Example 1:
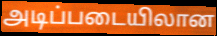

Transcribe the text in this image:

அடிப்படையிலான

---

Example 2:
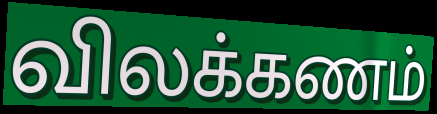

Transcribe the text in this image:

விலக்கணம்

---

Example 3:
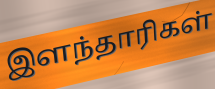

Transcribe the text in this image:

இளந்தாரிகள்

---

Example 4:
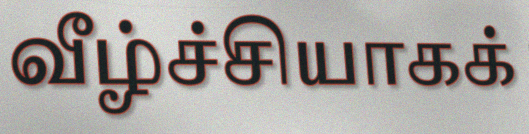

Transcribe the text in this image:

வீழ்ச்சியாகக்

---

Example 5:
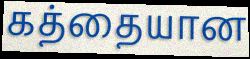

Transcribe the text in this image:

கத்தையான